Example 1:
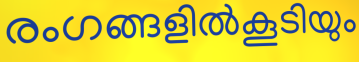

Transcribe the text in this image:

രംഗങ്ങളിൽകൂടിയും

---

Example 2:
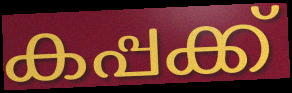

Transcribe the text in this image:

കപ്പക്ക്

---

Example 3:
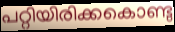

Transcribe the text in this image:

പറ്റിയിരിക്കകൊണ്ടു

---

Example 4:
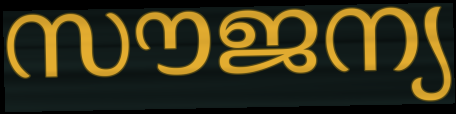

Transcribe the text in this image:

സൗജന്യ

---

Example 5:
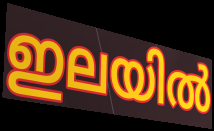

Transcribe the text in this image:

ഇലയിൽ